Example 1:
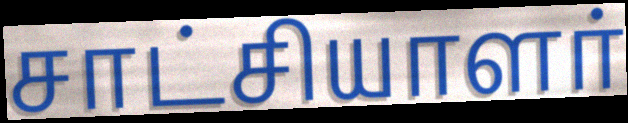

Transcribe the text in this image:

சாட்சியாளர்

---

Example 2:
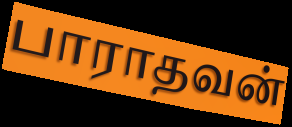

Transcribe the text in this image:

பாராதவன்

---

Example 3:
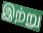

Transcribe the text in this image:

இற்று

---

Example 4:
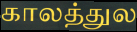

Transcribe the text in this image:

காலத்துல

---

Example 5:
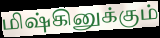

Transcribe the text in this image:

மிஷ்கினுக்கும்